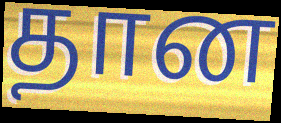
தான